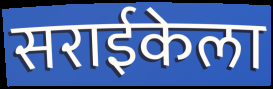
सराईकेला